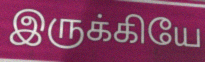
இருக்கியே